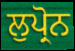
ਲੁਪ੍ਰੋਨ